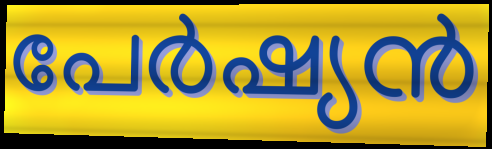
പേർഷ്യൻ